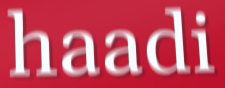
haadi